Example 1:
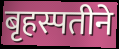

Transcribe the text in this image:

बृहस्पतीने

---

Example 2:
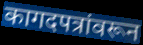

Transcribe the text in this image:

कागदपत्रांवरून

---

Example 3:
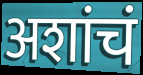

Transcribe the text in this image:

अशांचं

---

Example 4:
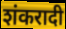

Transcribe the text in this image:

शंकरादी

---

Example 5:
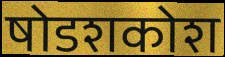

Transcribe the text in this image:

षोडशकोश